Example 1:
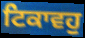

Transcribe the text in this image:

ਟਿਕਾਵਹੁ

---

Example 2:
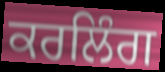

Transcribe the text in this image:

ਕਰਲਿੰਗ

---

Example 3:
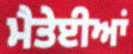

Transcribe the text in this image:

ਮੈਤੇਈਆਂ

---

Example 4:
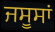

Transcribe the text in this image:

ਜਸੂਸਾਂ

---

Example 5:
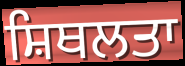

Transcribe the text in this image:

ਸ਼ਿਥਲਤਾ